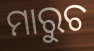
ମାରୁଚ